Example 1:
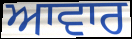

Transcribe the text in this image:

ਆਵਾਰ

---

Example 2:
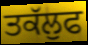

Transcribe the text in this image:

ਤਕੱਲੁਫ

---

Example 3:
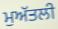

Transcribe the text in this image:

ਮੁਅੱਤਲੀ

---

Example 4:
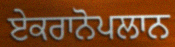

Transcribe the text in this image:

ਏਕਰਾਨੋਪਲਾਨ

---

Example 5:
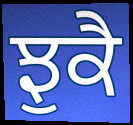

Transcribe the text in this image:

ਝੁਕੈ